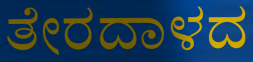
ತೇರದಾಳದ